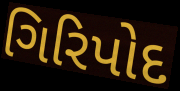
ગિરિપોદ